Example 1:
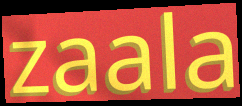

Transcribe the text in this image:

zaala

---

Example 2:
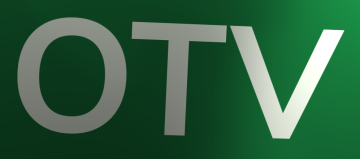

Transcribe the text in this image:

OTV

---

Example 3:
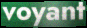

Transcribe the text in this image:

voyant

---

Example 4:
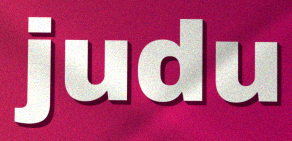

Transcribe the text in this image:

judu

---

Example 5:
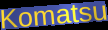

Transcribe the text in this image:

Komatsu